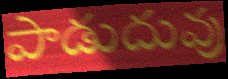
పాడుదువు